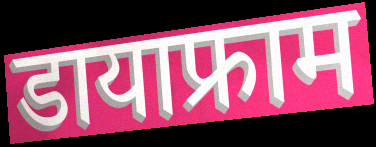
डायाफ्राम